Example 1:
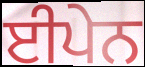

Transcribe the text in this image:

ਈਪੇਨ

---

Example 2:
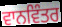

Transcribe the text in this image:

ਵਾਨਵਿੰਤਰ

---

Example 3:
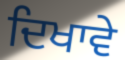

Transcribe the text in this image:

ਦਿਖਾਵੇ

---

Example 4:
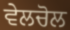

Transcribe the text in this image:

ਵੇਲਚੋਲ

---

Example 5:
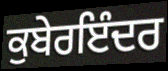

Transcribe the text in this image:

ਕੁਬੇਰਇੰਦਰ